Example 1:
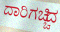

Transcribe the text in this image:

ದಾರಿಗಚ್ಚಿದ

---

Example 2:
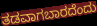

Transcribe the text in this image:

ತಡವಾಗಬಾರದೆಂದು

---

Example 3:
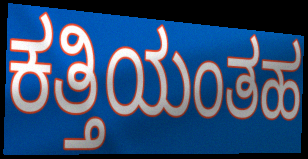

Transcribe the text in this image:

ಕತ್ತಿಯಂತಹ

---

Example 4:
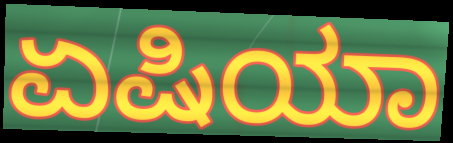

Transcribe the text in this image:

ಏಷಿಯಾ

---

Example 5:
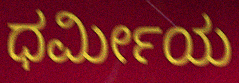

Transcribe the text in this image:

ಧರ್ಮೀಯ